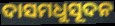
ଦାସମଧୁସୂଦନ